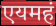
एयमहं